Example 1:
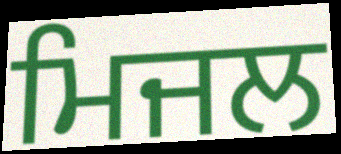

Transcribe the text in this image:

ਮਿਜਲ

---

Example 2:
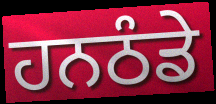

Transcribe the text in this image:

ਹਨਠੰਡੇ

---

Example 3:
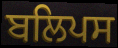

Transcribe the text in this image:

ਬਲਿਪਸ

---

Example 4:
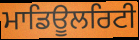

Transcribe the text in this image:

ਮਾਡਿਊਲਰਿਟੀ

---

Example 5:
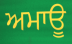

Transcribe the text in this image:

ਅਮਾਊ